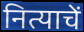
नित्याचें